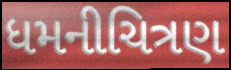
ધમનીચિત્રણ